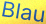
Blau